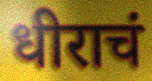
धीराचं